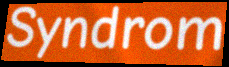
Syndrom